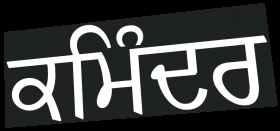
ਕਮਿੰਦਰ